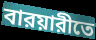
বারয়ারীতে